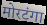
मोरटंगा